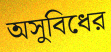
অসুবিধের